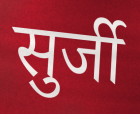
सुर्जी